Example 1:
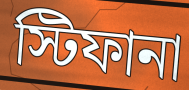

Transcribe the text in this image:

স্টিফানা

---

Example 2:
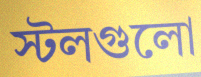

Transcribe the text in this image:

স্টলগুলো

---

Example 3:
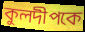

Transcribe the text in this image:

কুলদীপকে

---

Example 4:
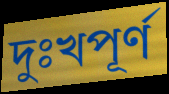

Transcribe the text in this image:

দুঃখপূর্ণ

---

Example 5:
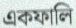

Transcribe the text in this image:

একফালি